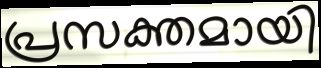
പ്രസക്തമായി